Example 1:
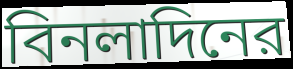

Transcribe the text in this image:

বিনলাদিনের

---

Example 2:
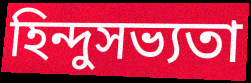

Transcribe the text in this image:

হিন্দুসভ্যতা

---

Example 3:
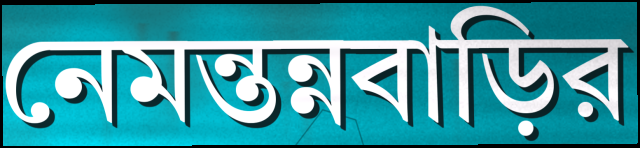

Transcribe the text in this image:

নেমন্তন্নবাড়ির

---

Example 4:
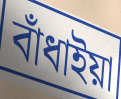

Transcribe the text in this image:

বাঁধাইয়া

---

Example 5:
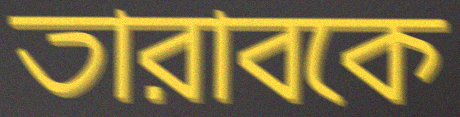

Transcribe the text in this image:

তারাবকে